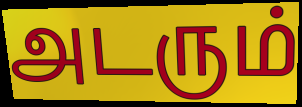
அடரும்